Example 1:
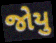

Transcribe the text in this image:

જોયુ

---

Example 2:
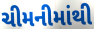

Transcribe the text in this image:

ચીમનીમાંથી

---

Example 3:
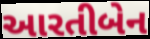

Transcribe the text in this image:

આરતીબેન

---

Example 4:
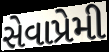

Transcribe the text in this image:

સેવાપ્રેમી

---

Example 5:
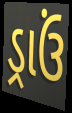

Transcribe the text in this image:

ડ્રાઉં